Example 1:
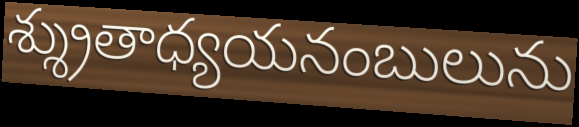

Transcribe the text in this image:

శ్శ్రుతాధ్యయనంబులును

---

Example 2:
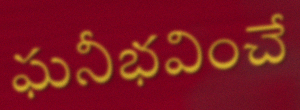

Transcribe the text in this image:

ఘనీభవించే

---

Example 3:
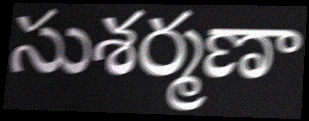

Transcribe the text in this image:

సుశర్మణా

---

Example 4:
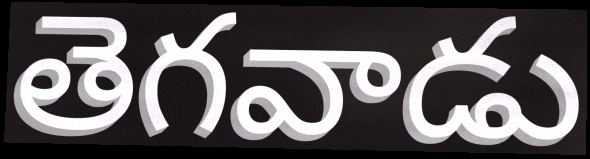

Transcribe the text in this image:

తెగవాడు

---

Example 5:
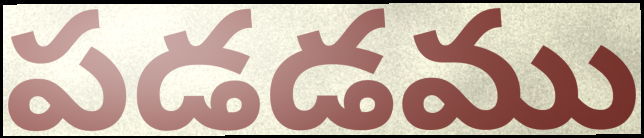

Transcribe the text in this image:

పడడము